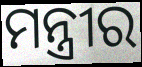
ମନ୍ତ୍ରୀର